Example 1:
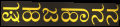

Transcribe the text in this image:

ಷಹಜಹಾನನ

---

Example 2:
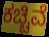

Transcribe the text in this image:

ಕಚ್ಚಿವೆ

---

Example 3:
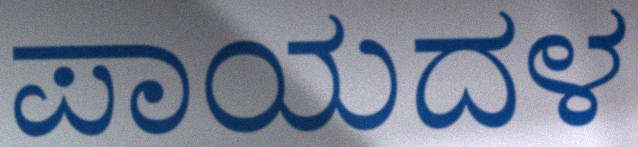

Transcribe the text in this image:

ಪಾಯದಳ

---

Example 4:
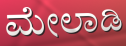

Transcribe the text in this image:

ಮೇಲಾಡಿ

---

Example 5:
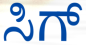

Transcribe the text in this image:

ಸಿಗ್